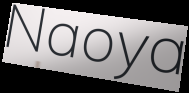
Naoya